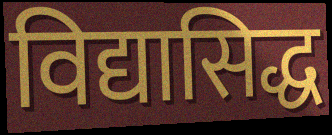
विद्यासिद्ध